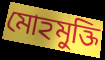
মোহমুক্তি